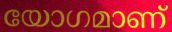
യോഗമാണ്